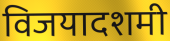
विजयादशमी